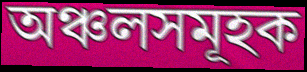
অঞ্চলসমূহক